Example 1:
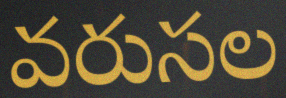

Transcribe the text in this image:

వరుసల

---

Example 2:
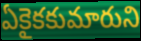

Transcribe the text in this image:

ఏకైకకుమారుని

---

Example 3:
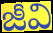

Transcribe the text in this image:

జీవి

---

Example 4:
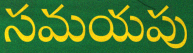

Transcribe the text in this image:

సమయపు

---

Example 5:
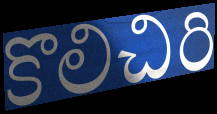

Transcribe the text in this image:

కొలిచిరి